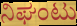
ನಿಘಂಟು